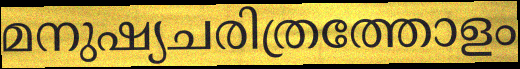
മനുഷ്യചരിത്രത്തോളം